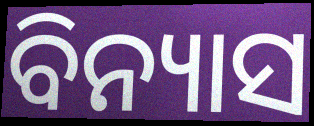
ବିନ୍ୟାସ